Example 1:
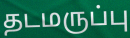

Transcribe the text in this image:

தடமருப்பு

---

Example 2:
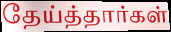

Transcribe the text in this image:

தேய்த்தார்கள்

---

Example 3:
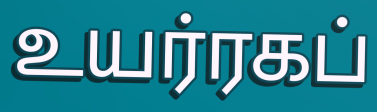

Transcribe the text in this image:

உயர்ரகப்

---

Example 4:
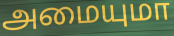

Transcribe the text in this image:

அமையுமா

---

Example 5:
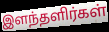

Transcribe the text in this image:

இளந்தளிர்கள்